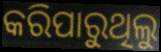
କରିପାରୁଥିଲୁ